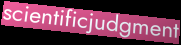
scientificjudgment